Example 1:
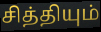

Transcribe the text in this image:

சித்தியும்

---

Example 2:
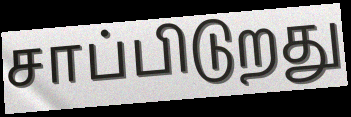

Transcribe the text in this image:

சாப்பிடுறது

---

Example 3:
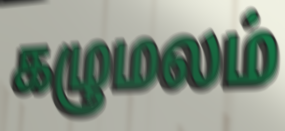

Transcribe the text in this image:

கழுமலம்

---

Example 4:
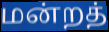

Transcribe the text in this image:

மன்றத்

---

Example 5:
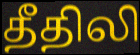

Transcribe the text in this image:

தீதிலி